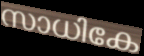
സാധികേ